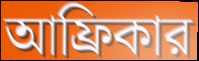
আফ্রিকার